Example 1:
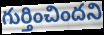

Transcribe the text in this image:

గుర్తించిందని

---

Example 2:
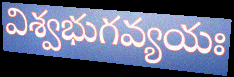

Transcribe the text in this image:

విశ్వభుగవ్యయః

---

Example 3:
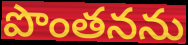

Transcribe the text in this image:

పొంతనను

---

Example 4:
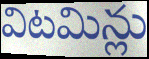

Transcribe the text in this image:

విటమిన్లు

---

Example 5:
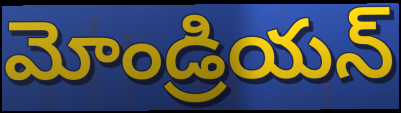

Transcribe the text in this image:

మోండ్రియన్